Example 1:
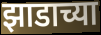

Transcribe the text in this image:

झाडाच्या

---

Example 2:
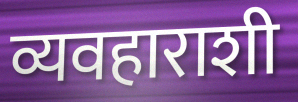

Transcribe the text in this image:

व्यवहाराशी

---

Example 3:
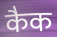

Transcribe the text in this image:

कैक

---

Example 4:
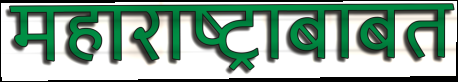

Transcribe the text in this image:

महाराष्ट्राबाबत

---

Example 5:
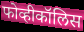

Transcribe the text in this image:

फोव्हीकॉलिस